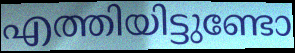
എത്തിയിട്ടുണ്ടോ